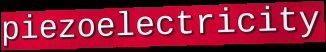
piezoelectricity